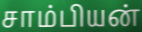
சாம்பியன்